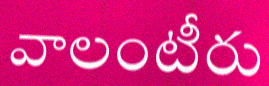
వాలంటీరు